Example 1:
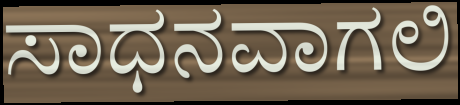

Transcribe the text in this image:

ಸಾಧನವಾಗಲಿ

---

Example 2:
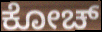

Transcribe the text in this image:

ಕೋಚ್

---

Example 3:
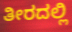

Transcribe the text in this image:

ತೀರದಲ್ಲಿ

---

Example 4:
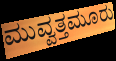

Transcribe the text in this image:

ಮುವ್ವತ್ತಮೂರು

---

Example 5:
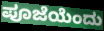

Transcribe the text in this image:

ಪೂಜೆಯೆಂದು